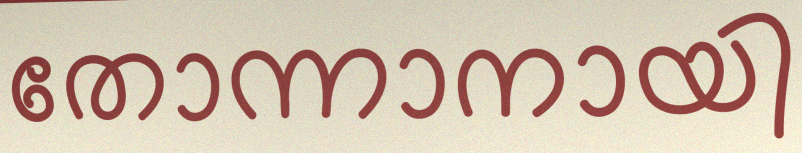
തോന്നാനായി